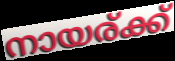
നായര്ക്ക്